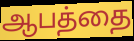
ஆபத்தை